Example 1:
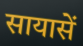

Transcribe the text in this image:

सायासें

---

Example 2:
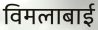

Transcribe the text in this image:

विमलाबाई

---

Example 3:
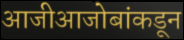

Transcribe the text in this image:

आजीआजोबांकडून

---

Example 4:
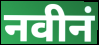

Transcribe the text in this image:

नवीनं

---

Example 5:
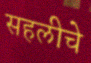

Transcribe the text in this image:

सहलीचे